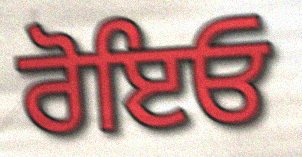
ਰੋਇਓ